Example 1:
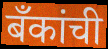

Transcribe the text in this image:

बँकांची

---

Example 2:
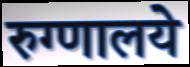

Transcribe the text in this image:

रुग्णालये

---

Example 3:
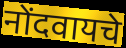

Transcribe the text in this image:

नोंदवायचे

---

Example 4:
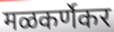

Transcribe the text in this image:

मळकर्णेकर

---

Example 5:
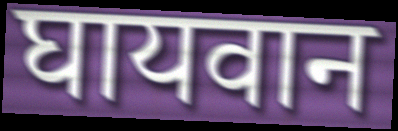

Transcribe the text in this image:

घायवान